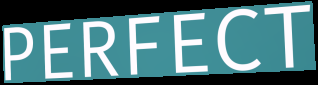
PERFECT